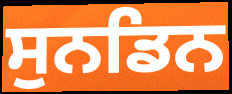
ਸੁਨਡਿਨ